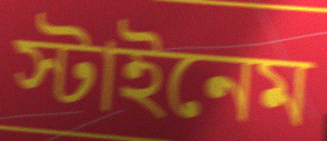
স্টাইনেম